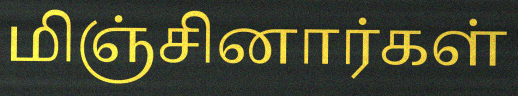
மிஞ்சினார்கள்